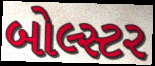
બોલ્સ્ટર